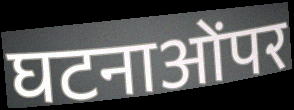
घटनाओंपर